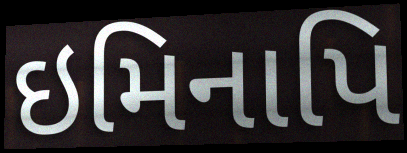
ઇમિનાપિ